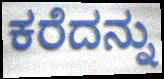
ಕರೆದನ್ನು